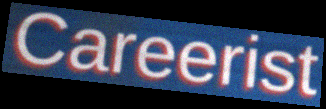
Careerist